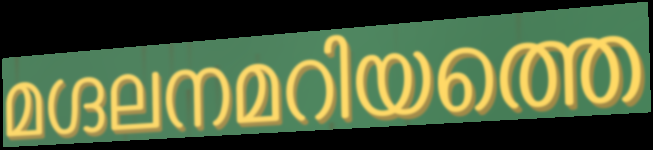
മഗ്ദലനമറിയത്തെ